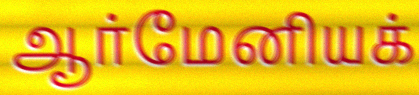
ஆர்மேனியக்